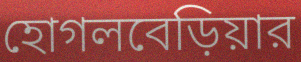
হোগলবেড়িয়ার